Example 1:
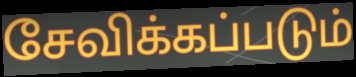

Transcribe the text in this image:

சேவிக்கப்படும்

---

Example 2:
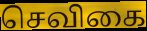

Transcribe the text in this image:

செவிகை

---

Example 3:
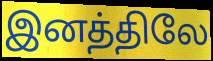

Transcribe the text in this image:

இனத்திலே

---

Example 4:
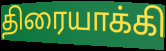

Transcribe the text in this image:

திரையாக்கி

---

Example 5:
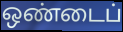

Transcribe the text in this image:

ஒண்டைப்